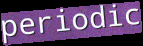
periodic